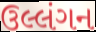
ઉલ્લંગન